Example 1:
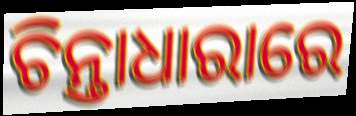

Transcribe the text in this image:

ଚିନ୍ତାଧାରାରେ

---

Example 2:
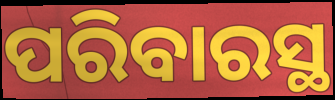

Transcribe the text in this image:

ପରିବାରସ୍ଥ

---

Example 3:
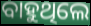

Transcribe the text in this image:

ବାହୁଥିଲେ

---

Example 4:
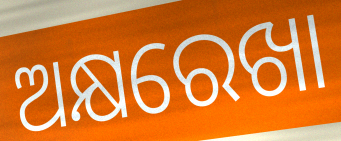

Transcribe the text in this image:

ଅକ୍ଷରେଖା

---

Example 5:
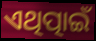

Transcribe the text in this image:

ଏଥିତ୍ପାଇଁ